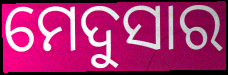
ମେଦୁସାର